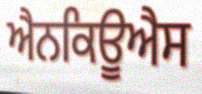
ਐਨਕਿਊਐਸ